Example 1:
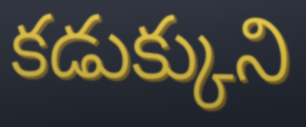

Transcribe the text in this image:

కడుక్కుని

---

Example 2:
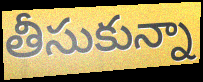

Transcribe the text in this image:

తీసుకున్నా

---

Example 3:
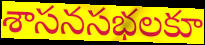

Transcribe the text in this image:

శాసనసభలకూ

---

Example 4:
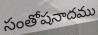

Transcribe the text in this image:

సంతోషనాదము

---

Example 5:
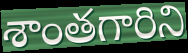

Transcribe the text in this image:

శాంతగారిని